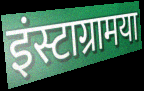
इंस्टाग्रामया